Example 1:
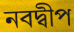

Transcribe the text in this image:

নবদ্বীপ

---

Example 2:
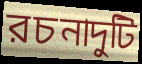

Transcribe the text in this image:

রচনাদুটি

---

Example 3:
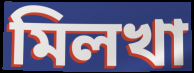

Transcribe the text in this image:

মিলখা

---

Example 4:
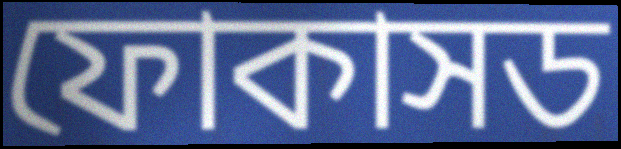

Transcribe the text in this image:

ফোকাসড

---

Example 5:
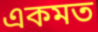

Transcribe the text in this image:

একমত